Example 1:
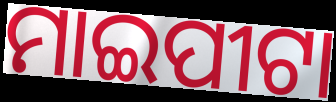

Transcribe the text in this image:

ମାଇପୀଟା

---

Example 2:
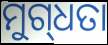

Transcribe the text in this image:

ମୁଗ୍‌ଧତା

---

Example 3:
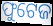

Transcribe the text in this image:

ଫୁଟେଜ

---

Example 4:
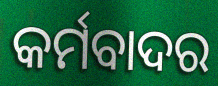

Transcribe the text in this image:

କର୍ମବାଦର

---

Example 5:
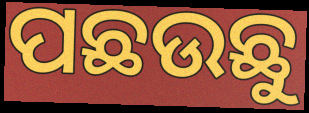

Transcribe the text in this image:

ପଛଉଛୁ